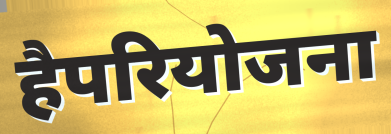
हैपरियोजना